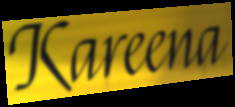
Kareena